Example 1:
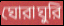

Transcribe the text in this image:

ঘোরাঘুরি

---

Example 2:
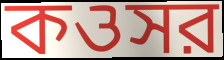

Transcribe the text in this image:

কওসর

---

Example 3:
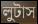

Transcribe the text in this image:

লুটাস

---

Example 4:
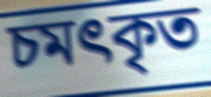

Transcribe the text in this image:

চমৎকৃত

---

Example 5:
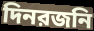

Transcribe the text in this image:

দিনরজনি